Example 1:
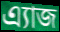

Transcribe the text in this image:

এ্যাজ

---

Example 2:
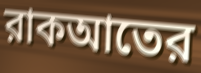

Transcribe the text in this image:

রাকআতের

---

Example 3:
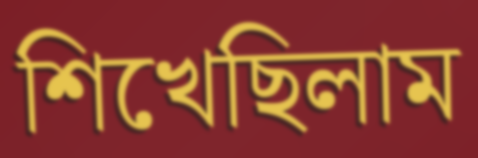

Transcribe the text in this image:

শিখেছিলাম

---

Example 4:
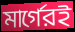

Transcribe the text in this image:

মার্গেরই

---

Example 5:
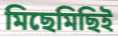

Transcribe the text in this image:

মিছেমিছিই